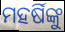
ମହର୍ଷିଙ୍କୁ